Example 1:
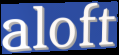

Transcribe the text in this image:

aloft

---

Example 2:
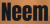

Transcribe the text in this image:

Neem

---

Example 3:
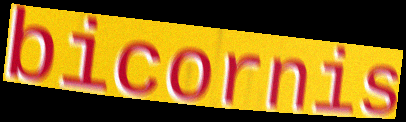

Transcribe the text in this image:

bicornis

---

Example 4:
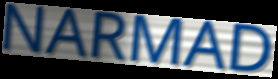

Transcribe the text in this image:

NARMAD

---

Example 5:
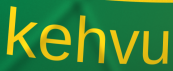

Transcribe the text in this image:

kehvu